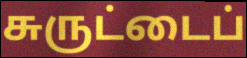
சுருட்டைப்